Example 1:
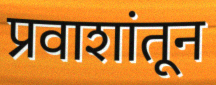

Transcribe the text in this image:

प्रवाशांतून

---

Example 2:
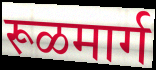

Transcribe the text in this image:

रूळमार्ग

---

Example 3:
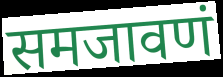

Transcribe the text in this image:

समजावणं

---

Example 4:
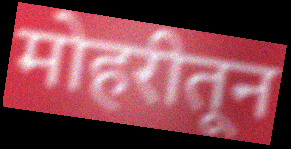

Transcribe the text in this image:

मोहरीतून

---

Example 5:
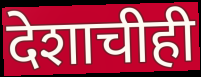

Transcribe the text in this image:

देशाचीही